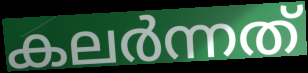
കലർന്നത്